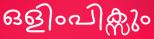
ഒളിംപിക്സും